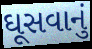
ઘૂસવાનું